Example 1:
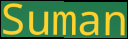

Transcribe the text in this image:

Suman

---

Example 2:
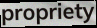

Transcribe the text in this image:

propriety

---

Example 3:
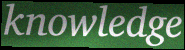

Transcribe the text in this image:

knowledge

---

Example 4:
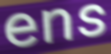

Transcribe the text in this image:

ens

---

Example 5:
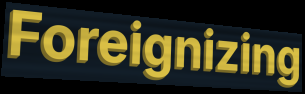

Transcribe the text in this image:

Foreignizing